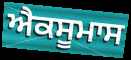
ਐਕਸੂਮਾਸ